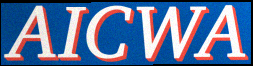
AICWA